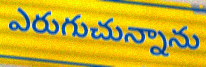
ఎరుగుచున్నాను